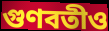
গুণবতীও